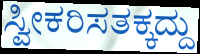
ಸ್ವೀಕರಿಸತಕ್ಕದ್ದು